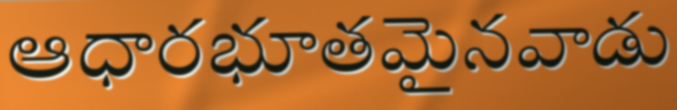
ఆధారభూతమైనవాడు